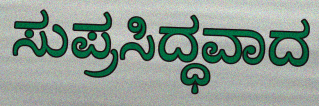
ಸುಪ್ರಸಿದ್ಧವಾದ